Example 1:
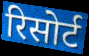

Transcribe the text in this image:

रिसोर्ट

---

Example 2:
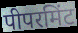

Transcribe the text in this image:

पीपरमिंट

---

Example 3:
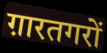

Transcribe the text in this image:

ग़ारतगरों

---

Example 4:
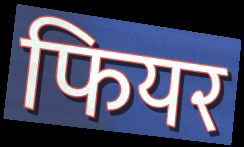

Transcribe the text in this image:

फियर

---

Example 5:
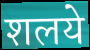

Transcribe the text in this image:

शलये